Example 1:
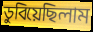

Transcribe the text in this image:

ডুবিয়েছিলাম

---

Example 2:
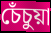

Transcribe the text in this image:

চেঁচুয়া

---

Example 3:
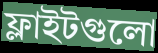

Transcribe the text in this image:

ফ্লাইটগুলো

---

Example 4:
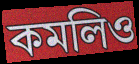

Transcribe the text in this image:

কমলিও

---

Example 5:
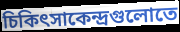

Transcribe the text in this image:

চিকিৎসাকেন্দ্রগুলোতে